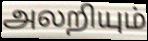
அலறியும்